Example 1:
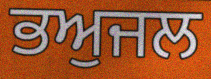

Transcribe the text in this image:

ਭਅੁਜਲ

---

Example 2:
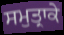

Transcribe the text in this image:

ਸਮੁਤ੍ਰਾਕੇ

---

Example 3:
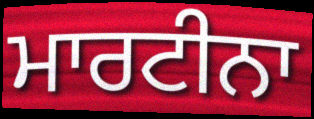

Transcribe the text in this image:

ਮਾਰਟੀਨਾ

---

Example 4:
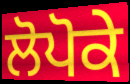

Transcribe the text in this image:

ਲੋਪੋਕੇ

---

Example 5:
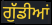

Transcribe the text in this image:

ਗੁੱਡੀਆਂ